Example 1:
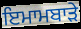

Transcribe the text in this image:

ਇਮਾਮਬਾੜੇ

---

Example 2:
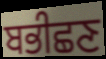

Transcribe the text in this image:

ਬਭੀਛਣ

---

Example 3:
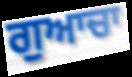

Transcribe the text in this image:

ਗੁਆਚਾ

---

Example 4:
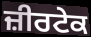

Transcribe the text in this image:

ਜ਼ੀਰਟੇਕ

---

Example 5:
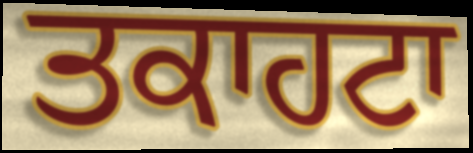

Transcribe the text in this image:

ਤਕਾਹਟਾ